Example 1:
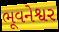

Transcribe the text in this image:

ભૂવનેશ્વર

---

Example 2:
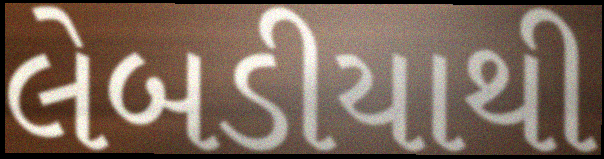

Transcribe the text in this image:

લેબડીયાથી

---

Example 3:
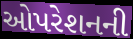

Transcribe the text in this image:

ઓપરેશનની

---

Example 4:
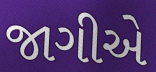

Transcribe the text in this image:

જાગીએ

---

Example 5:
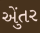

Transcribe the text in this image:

એુંતર